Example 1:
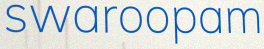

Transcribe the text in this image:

swaroopam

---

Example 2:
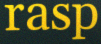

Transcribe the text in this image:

rasp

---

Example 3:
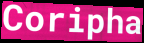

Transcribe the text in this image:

Coripha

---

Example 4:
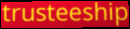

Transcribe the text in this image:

trusteeship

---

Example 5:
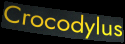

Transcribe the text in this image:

Crocodylus